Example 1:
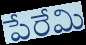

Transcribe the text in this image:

పేరేమి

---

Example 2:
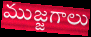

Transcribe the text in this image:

ముజ్జగాలు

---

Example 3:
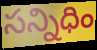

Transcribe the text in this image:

సన్నిధిం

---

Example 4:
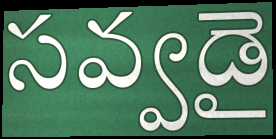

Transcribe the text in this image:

సవ్వడై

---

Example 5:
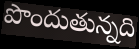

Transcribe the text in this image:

పొందుతున్నది